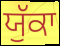
ਯੁੱਕਾ